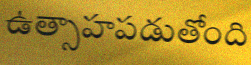
ఉత్సాహపడుతోంది